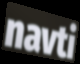
navti